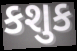
કશુક